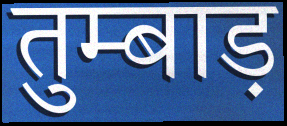
तुम्बाड़